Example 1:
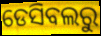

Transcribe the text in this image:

ଡେସିବଲରୁ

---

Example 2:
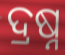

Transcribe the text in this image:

ଦ୍ରଷ୍ନ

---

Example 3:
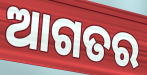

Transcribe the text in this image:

ଆଗତର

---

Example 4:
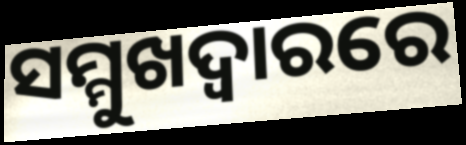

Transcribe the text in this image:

ସମ୍ମୁଖଦ୍ୱାରରେ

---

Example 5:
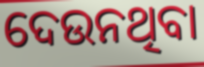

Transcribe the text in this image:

ଦେଉନଥିବା